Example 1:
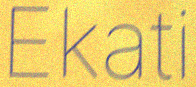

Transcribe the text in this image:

Ekati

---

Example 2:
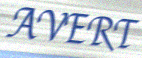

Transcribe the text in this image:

AVERT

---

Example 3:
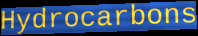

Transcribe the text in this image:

Hydrocarbons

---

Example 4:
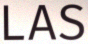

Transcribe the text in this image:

LAS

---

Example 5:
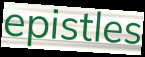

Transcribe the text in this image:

epistles